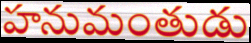
హనుమంతుడు